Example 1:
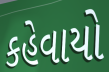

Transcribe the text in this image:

કહેવાયો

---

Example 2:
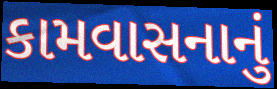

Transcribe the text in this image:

કામવાસનાનું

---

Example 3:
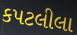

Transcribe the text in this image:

કપટલીલા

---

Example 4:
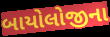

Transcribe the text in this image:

બાયોલોજીના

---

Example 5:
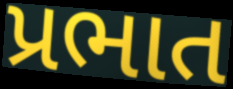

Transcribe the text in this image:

પ્રભાત